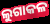
ଲୁଗାକଳ